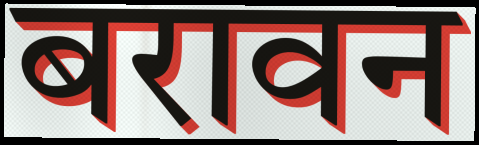
बरावन